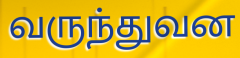
வருந்துவன